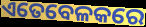
ଏତେବେଳକରେ